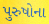
પુરુષોના